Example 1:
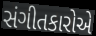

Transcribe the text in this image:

સંગીતકારોએ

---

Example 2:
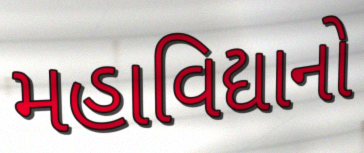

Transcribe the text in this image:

મહાવિદ્યાનો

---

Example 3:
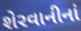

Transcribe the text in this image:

શેરવાનીનાં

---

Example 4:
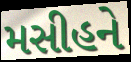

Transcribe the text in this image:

મસીહને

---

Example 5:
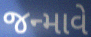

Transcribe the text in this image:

જન્માવે